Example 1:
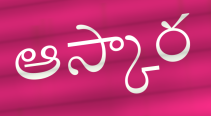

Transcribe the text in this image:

ఆస్కార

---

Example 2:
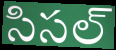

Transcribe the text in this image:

సిసల్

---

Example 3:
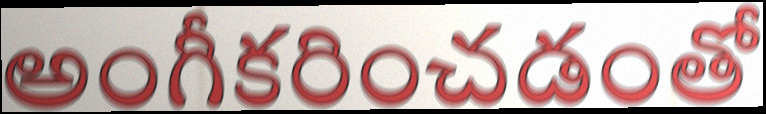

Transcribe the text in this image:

అంగీకరించడంతో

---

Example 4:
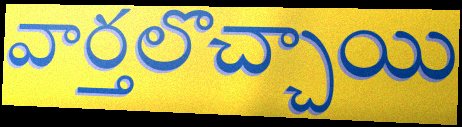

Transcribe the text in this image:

వార్తలొచ్చాయి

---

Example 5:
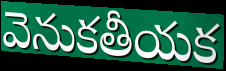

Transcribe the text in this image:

వెనుకతీయక